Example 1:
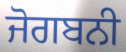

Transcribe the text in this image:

ਜੋਗਬਨੀ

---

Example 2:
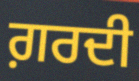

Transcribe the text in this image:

ਗ਼ਰਦੀ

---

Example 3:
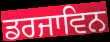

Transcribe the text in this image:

ਡਰਜਾਵਿਨ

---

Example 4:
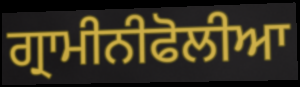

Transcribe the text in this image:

ਗ੍ਰਾਮੀਨੀਫੋਲੀਆ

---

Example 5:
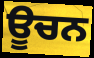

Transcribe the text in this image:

ਊਚਨ